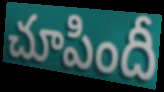
చూపిందీ